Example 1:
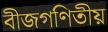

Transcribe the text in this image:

বীজগণিতীয়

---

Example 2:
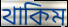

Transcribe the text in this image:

থাকিম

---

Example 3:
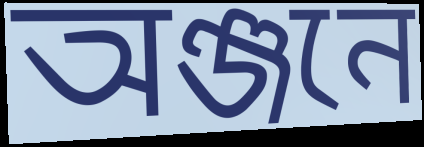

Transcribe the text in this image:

অঞ্জনে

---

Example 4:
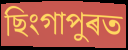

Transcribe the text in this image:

ছিংগাপুৰত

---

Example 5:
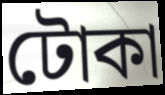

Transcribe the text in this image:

টোকা